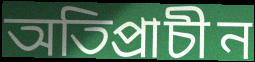
অতিপ্রাচীন